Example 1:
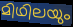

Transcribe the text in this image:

മിഥിലയും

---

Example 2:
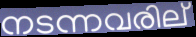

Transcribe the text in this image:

നടന്നവരില്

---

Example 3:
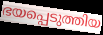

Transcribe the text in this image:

ഭയപ്പെടുത്തിയ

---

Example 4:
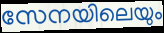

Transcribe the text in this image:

സേനയിലെയും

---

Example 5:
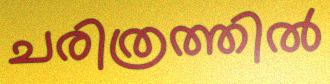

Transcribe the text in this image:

ചരിത്രത്തിൽ